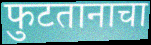
फुटतानाचा